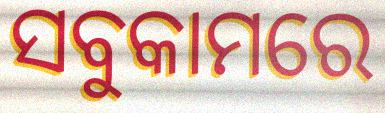
ସବୁକାମରେ